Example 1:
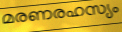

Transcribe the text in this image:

മരണരഹസ്യം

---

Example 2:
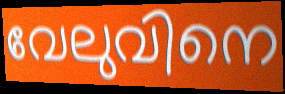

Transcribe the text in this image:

വേലുവിനെ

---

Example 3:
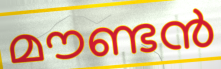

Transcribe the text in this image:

മൗണ്ടൻ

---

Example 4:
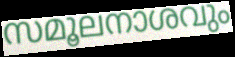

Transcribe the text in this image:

സമൂലനാശവും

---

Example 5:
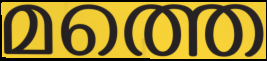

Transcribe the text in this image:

മത്തെ